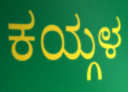
ಕಯ್ಗಳ